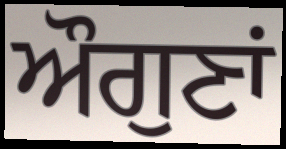
ਔਗੁਣਾਂ